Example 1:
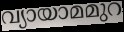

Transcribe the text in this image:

വ്യായാമമുറ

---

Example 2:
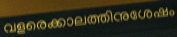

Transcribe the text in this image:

വളരെക്കാലത്തിനുശേഷം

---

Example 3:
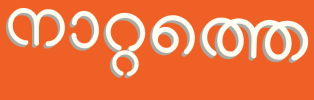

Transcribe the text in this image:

നാറ്റത്തെ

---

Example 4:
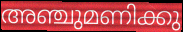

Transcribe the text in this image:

അഞ്ചുമണിക്കു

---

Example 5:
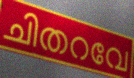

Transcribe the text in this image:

ചിതറവേ